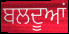
ਬਲਦੂਆਂ